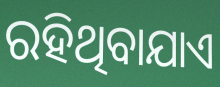
ରହିଥିବାଯାଏ